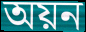
অয়ন